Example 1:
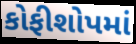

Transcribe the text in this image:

કોફીશોપમાં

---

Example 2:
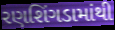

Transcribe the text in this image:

રણશિંગડામાંથી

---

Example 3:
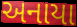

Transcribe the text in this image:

અનાયા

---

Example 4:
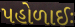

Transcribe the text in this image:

પહોળાઈઃ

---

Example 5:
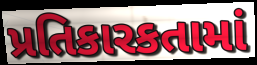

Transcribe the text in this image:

પ્રતિકારકતામાં